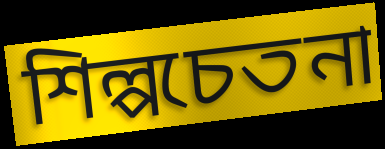
শিল্পচেতনা